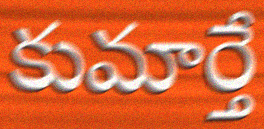
కుమార్తే